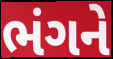
ભંગને